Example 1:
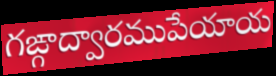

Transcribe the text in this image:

గఙ్గాద్వారముపేయాయ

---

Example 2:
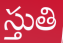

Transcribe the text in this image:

స్తుతి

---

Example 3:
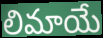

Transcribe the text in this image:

లిమాయే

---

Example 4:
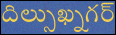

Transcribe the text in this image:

దిల్సుఖ్నగర్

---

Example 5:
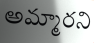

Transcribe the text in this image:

అమ్మారని